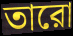
তারো